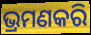
ଭ୍ରମଣକରି